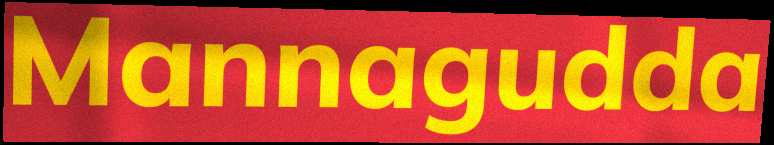
Mannagudda